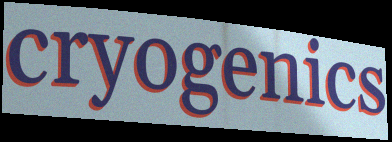
cryogenics